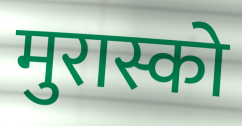
मुरास्को